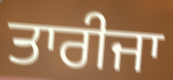
ਤਾਰੀਜਾ